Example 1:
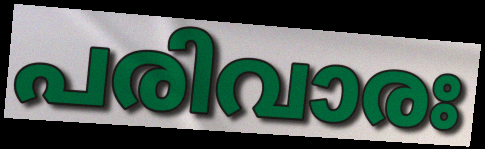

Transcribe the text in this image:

പരിവാരഃ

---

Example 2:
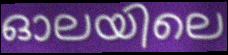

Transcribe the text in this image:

ഓലയിലെ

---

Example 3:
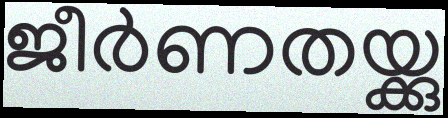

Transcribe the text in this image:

ജീർണതയ്ക്കു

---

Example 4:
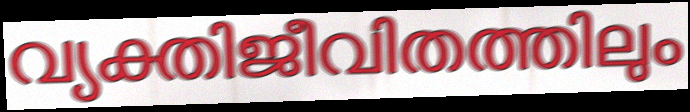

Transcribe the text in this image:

വ്യക്തിജീവിതത്തിലും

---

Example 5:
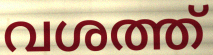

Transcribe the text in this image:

വശത്ത്